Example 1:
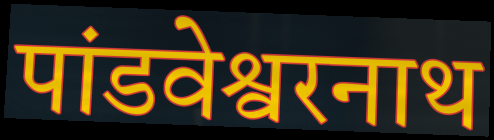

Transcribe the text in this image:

पांडवेश्वरनाथ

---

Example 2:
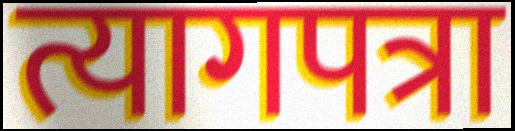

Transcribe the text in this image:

त्यागपत्रा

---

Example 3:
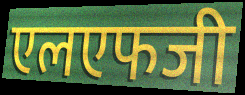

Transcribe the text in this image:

एलएफजी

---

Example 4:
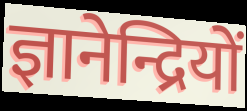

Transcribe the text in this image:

ज्ञानेन्द्रियों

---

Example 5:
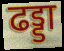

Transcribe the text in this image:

ढड्डा